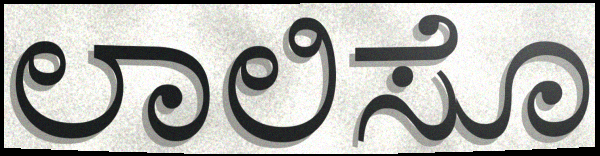
ಲಾಲಿಸೊ